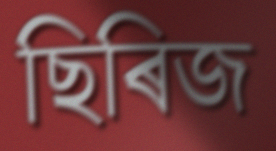
ছিৰিজ